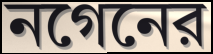
নগেনের